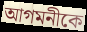
আগমনীকে